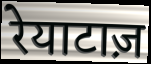
रेयाटाज़